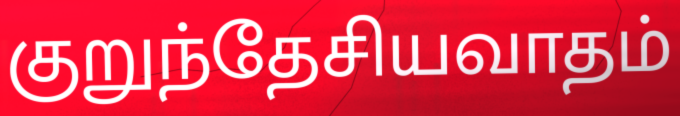
குறுந்தேசியவாதம்